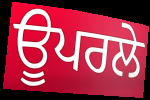
ਊਪਰਲੇ